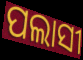
ପଲାସୀ